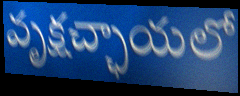
వృక్షచ్ఛాయలో